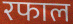
रफाल